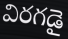
విరగడై